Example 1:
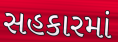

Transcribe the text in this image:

સહકારમાં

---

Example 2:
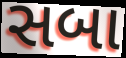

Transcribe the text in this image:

સબા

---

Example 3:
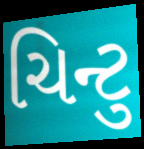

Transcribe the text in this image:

ચિન્ટુ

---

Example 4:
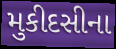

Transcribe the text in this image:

મુકીદસીના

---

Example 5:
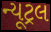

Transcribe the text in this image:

ન્યૂટ્રલ